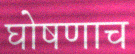
घोषणाच